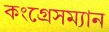
কংগ্রেসম্যান